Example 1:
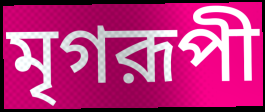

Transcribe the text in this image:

মৃগরূপী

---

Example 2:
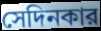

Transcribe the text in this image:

সেদিনকার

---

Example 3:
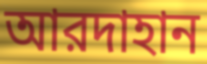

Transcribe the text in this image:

আরদাহান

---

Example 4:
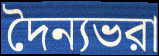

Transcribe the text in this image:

দৈন্যভরা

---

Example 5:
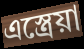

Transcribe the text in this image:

এস্ত্রেয়া